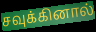
சவுக்கினால்